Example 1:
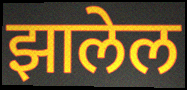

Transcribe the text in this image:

झालेल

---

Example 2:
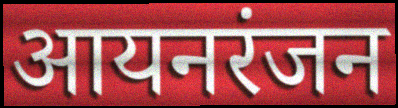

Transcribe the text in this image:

आयनरंजन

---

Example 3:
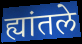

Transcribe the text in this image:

ह्यांतले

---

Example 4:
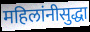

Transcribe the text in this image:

महिलांनीसुद्धा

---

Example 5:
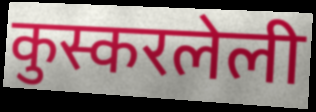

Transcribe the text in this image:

कुस्करलेली